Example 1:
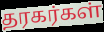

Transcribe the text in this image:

தரகர்கள்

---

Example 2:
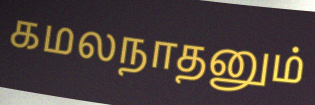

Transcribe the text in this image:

கமலநாதனும்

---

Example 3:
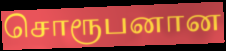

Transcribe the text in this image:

சொரூபனான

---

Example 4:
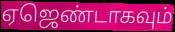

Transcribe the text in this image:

ஏஜெண்டாகவும்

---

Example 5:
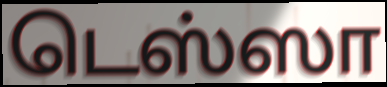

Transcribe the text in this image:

டெஸ்ஸா